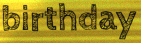
birthday